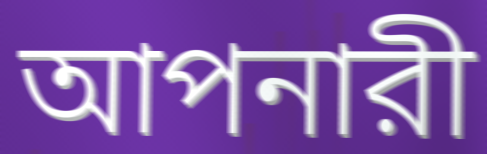
আপনারী